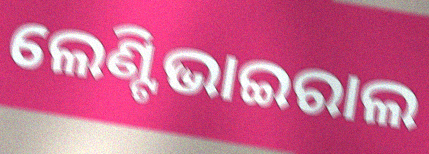
ଲେଣ୍ଟିଭାଇରାଲ